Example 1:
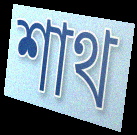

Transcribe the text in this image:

শাথ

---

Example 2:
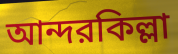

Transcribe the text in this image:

আন্দরকিল্লা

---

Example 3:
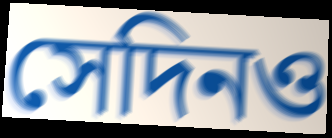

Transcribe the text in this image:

সেদিনও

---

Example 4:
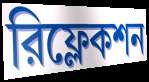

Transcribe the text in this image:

রিফ্লেকশন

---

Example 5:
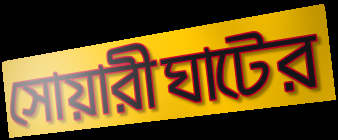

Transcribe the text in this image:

সোয়ারীঘাটের